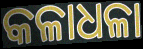
କଳାଧଳା